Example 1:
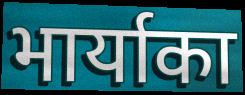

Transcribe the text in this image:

भार्याका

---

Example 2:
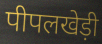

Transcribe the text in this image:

पीपलखेड़ी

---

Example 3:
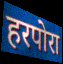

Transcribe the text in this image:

हरपोरा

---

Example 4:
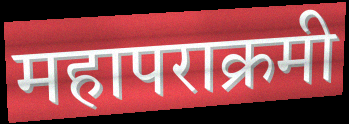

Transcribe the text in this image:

महापराक्रमी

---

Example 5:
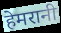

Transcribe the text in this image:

हेमरानी